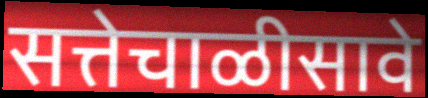
सत्तेचाळीसावे